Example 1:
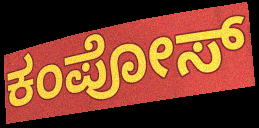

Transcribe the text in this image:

ಕಂಪೋಸ್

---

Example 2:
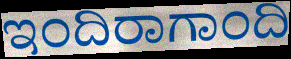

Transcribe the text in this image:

ಇಂದಿರಾಗಾಂದಿ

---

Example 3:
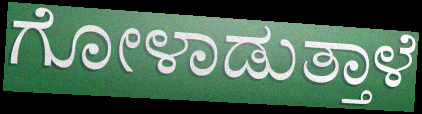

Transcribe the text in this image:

ಗೋಳಾಡುತ್ತಾಳೆ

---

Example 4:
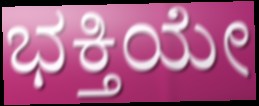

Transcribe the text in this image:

ಭಕ್ತಿಯೇ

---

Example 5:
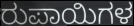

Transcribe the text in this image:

ರುಪಾಯಿಗಳ